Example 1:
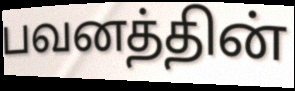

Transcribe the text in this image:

பவனத்தின்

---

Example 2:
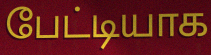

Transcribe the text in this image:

பேட்டியாக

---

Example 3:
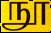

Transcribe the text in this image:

நூ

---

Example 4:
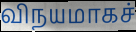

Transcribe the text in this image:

விநயமாகச்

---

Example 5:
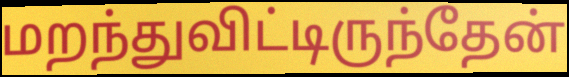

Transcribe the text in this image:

மறந்துவிட்டிருந்தேன்